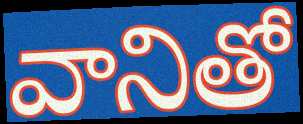
వానితో